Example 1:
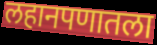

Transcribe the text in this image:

लहानपणातला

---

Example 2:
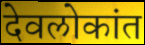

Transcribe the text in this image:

देवलोकांत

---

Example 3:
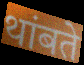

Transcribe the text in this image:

थांबते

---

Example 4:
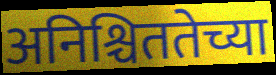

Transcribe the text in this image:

अनिश्चिततेच्या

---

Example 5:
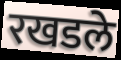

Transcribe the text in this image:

रखडले